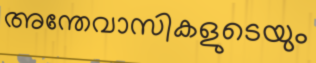
അന്തേവാസികളുടെയും